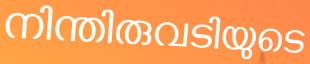
നിന്തിരുവടിയുടെ